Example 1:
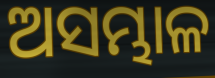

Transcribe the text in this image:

ଅସମ୍ଭାଳ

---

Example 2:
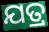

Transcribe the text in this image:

ଯତ୍ର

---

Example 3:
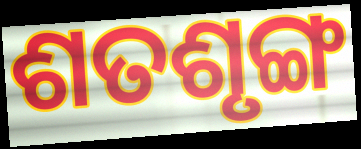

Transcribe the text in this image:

ଶତଶୃଙ୍ଗ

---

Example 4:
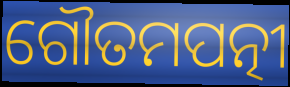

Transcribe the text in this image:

ଗୌତମପତ୍ନୀ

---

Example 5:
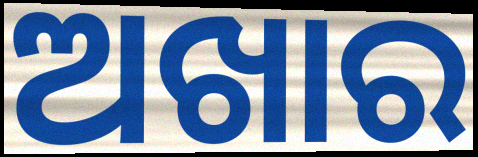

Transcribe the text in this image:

ଅଖାର